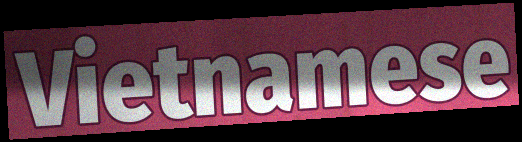
Vietnamese